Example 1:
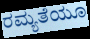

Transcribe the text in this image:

ರಮ್ಯತೆಯೂ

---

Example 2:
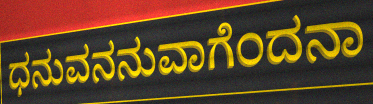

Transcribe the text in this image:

ಧನುವನನುವಾಗೆಂದನಾ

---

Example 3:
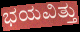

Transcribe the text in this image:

ಭಯವಿತ್ತು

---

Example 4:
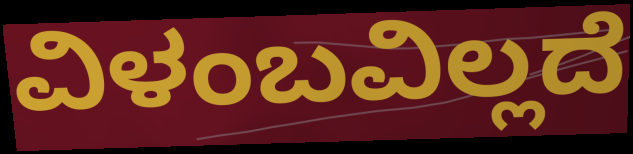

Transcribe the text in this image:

ವಿಳಂಬವಿಲ್ಲದೆ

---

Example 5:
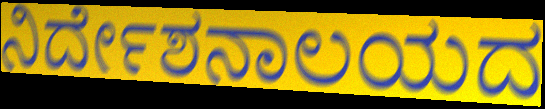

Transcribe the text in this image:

ನಿರ್ದೇಶನಾಲಯದ